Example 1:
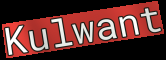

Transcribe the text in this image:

Kulwant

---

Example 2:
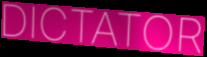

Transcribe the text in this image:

DICTATOR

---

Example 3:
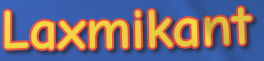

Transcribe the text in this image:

Laxmikant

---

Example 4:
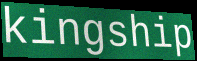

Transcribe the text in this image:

kingship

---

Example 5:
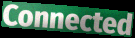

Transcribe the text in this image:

Connected